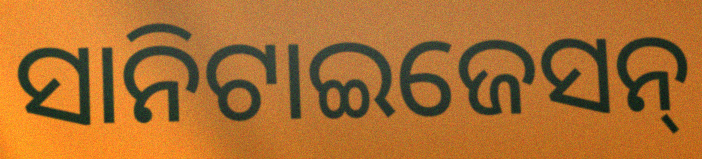
ସାନିଟାଇଜେସନ୍